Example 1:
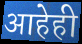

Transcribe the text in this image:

आहेही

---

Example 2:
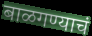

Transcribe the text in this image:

बाळगण्याचं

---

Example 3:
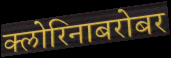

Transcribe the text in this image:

क्लोरिनाबरोबर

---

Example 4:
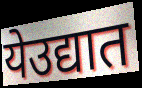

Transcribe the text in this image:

येउद्यात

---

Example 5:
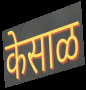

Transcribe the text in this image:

केसाळ